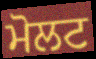
ਮੋਲਟ